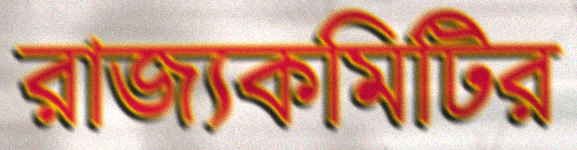
রাজ্যকমিটির